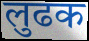
लुढक